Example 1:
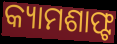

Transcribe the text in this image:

କ୍ୟାମଶାଫ୍ଟ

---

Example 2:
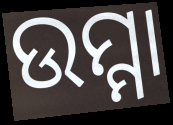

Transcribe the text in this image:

ଉମ୍ମା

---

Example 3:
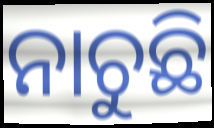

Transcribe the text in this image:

ନାଚୁଛି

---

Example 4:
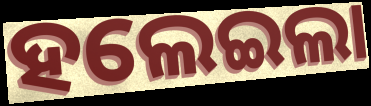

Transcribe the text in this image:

ହଲେଇଲା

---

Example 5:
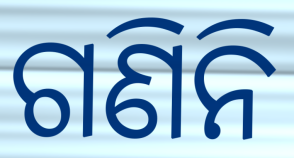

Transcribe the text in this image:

ଗଣିନି